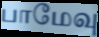
பாமேவு